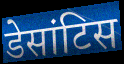
डेसांटिस